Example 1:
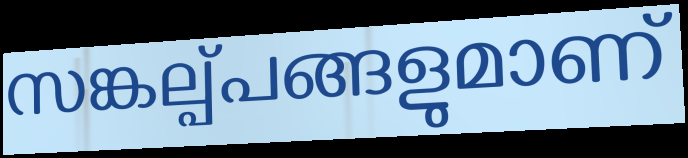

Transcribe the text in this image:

സങ്കല്പ്പങ്ങളുമാണ്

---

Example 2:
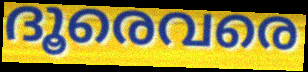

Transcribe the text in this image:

ദൂരെവരെ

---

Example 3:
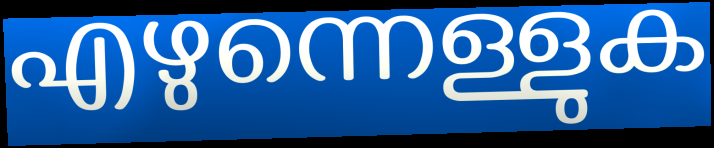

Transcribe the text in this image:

എഴുന്നെള്ളുക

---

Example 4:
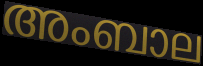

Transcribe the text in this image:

അംബാല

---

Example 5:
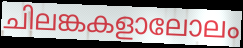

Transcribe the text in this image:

ചിലങ്കകളാലോലം